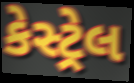
કેસ્ટ્રેલ